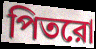
পিতরো